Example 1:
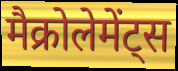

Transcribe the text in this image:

मैक्रोलेमेंट्स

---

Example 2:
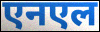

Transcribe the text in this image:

एनएल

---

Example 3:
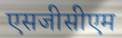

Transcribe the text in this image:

एसजीसीएम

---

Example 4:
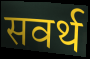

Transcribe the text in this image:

सवर्थ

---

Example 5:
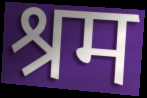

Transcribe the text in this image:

श्रम